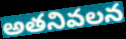
అతనివలన